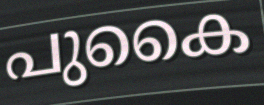
പുകൈ